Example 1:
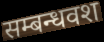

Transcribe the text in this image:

सम्बन्धवश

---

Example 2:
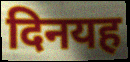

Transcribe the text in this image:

दिनयह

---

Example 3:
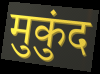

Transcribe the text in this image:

मुकुंद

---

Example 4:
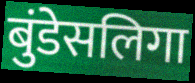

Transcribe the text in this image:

बुंडेसलिगा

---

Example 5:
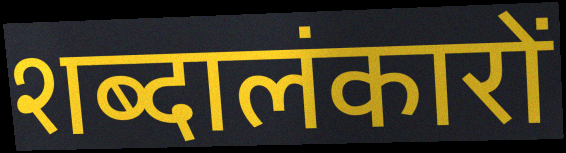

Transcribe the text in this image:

शब्दालंकारों